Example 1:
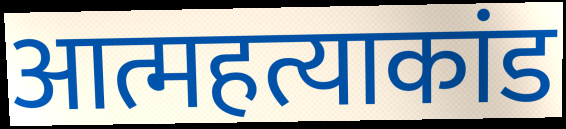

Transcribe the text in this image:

आत्महत्याकांड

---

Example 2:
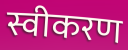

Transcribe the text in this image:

स्वीकरण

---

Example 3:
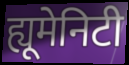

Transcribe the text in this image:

ह्यूमेनिटी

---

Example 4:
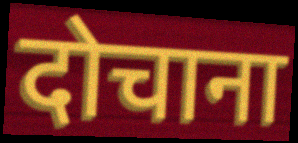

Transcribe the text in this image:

दोचाना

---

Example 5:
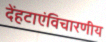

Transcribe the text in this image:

देंहटाएंविचारणीय